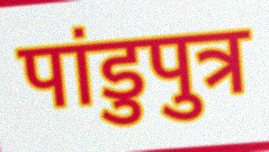
पांडुपुत्र